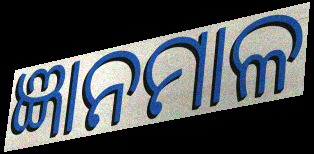
ଜ୍ଞାନମାଳ